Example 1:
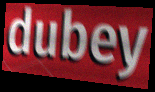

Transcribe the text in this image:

dubey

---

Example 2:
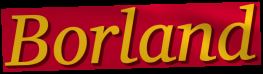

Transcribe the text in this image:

Borland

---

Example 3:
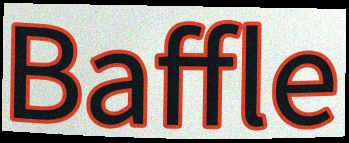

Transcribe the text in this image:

Baffle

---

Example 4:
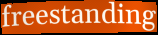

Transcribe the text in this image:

freestanding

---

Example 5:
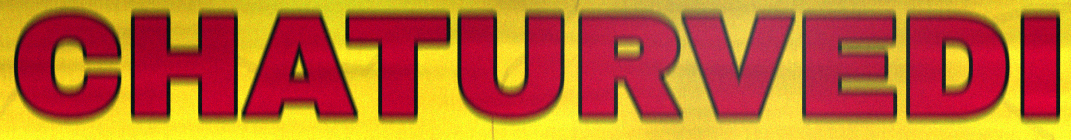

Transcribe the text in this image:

CHATURVEDI